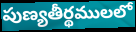
పుణ్యతీర్థములలో